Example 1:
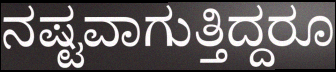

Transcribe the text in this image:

ನಷ್ಟವಾಗುತ್ತಿದ್ದರೂ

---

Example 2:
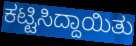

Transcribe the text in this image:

ಕಟ್ಟಿಸಿದ್ದಾಯಿತು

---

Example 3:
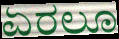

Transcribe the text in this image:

ಏರಲೂ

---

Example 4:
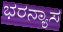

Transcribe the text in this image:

ಭರನ್ಯಾಸ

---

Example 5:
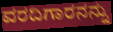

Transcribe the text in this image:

ವರದಿಗಾರನನ್ನು